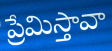
ప్రేమిస్తావా